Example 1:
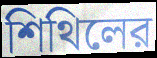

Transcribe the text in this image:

শিথিলের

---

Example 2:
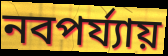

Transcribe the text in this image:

নবপর্য্যায়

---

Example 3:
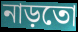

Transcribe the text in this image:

নাড়তো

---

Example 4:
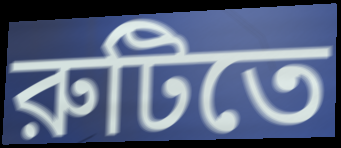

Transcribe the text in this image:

রুটিতে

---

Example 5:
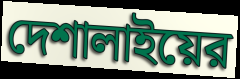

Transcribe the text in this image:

দেশালাইয়ের